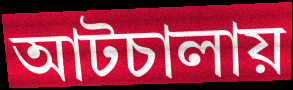
আটচালায়